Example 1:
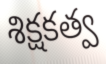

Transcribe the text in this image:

శిక్షకత్వ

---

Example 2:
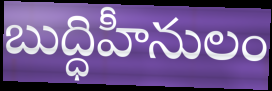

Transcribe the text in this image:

బుద్ధిహీనులం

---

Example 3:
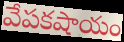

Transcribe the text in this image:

వేపకషాయం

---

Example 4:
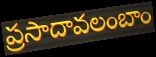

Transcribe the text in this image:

ప్రసాదావలంబాం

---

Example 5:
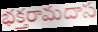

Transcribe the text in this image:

భక్తరామదాస